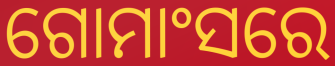
ଗୋମାଂସରେ